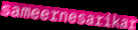
sameernesarikar